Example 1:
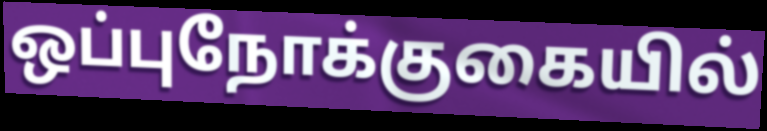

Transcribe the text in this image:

ஒப்புநோக்குகையில்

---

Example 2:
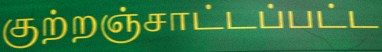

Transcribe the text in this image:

குற்றஞ்சாட்டப்பட்ட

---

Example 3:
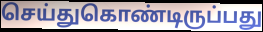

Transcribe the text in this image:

செய்துகொண்டிருப்பது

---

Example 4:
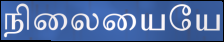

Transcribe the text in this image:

நிலையையே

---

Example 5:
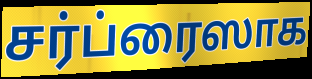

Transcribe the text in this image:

சர்ப்ரைஸாக